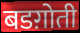
बडग़ोती